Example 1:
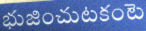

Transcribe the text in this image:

భుజించుటకంటె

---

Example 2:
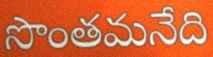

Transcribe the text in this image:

సొంతమనేది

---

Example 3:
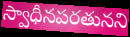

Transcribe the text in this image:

స్వాధీనపరతునని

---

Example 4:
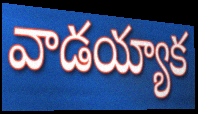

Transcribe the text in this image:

వాడయ్యాక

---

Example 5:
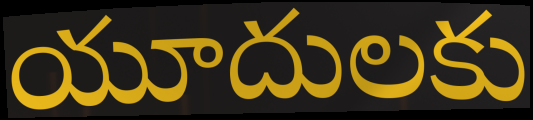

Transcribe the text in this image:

యూదులకు